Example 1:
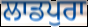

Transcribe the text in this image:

ਲਾਡਪੁਰਾ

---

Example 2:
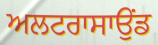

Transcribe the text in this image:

ਅਲਟਰਾਸਾਉਂਡ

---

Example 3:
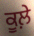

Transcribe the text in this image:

ਕੂਲ਼ੇ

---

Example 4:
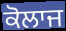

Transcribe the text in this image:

ਕੋਲਾਜ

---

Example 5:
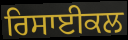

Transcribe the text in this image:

ਰਿਸਾਈਕਲ